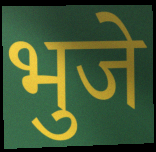
भुजे